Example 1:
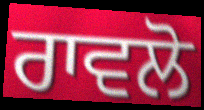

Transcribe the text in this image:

ਰਾਵਲੋ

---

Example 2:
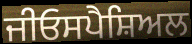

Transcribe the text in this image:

ਜੀਓਸਪੈਸ਼ਿਅਲ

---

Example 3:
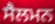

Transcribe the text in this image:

ਸੈਲਮਨ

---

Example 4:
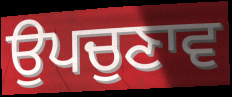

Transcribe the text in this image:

ਉਪਚੁਣਾਵ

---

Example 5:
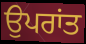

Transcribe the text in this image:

ਉਪਰਾਂਤ